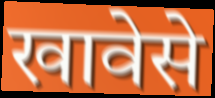
खावेसे